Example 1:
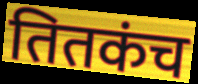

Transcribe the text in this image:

तितकंच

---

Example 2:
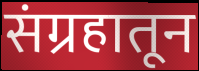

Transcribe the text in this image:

संग्रहातून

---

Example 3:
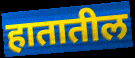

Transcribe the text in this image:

हातातील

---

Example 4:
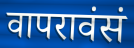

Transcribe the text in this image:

वापरावंसं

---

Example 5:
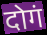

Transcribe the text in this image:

दोगं